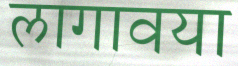
लागावया